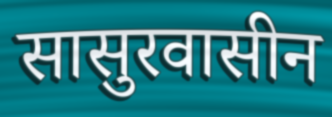
सासुरवासीन